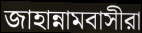
জাহান্নামবাসীরা